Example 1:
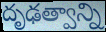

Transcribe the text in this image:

దృఢత్వాన్ని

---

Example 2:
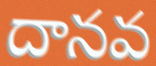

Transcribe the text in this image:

దానవ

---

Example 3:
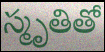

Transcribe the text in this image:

స్మృతితో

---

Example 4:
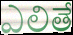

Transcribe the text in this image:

ఎలితే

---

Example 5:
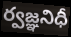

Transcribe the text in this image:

ర్వజ్ఞనిధీ